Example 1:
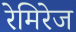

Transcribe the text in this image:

रेमिरेज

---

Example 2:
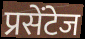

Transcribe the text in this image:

प्रसेंटेज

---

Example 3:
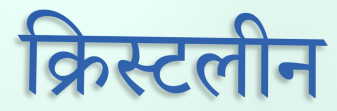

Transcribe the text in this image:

क्रिस्टलीन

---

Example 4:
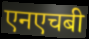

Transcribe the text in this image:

एनएचबी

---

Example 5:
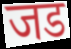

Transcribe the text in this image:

जड